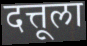
दत्तूला